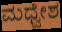
ಮಧ್ವೇಶ